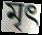
মৃৎ